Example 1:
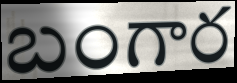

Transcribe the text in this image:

బంగార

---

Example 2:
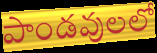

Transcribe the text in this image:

పాండవులలో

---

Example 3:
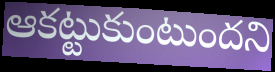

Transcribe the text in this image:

ఆకట్టుకుంటుందని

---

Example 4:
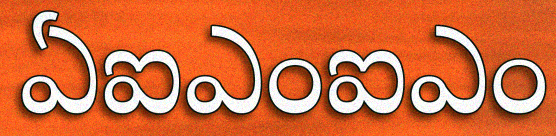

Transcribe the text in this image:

ఏఐఎంఐఎం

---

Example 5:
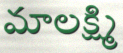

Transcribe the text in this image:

మాలక్ష్మి